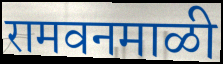
रामवनमाळी